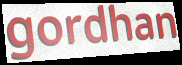
gordhan